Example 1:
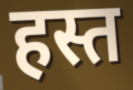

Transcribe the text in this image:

हस्त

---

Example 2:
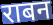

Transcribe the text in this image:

राबन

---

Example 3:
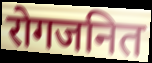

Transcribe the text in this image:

रोगजनित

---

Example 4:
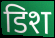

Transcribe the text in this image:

डिश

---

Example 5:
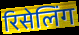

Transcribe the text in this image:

रिसेलिंग